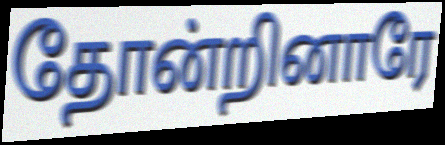
தோன்றினாரே